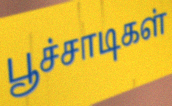
பூச்சாடிகள்